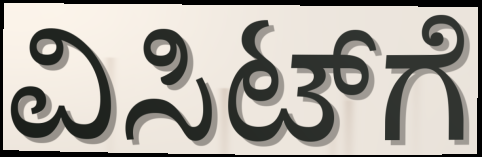
ವಿಸಿಟ್‌ಗೆ